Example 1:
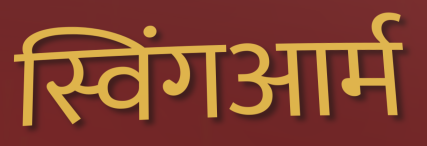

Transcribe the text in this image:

स्विंगआर्म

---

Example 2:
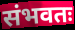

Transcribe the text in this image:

संभवतः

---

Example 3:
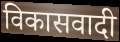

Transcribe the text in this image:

विकासवादी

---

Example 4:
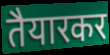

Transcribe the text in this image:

तैयारकर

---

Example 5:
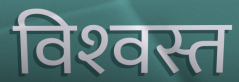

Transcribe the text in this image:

विश्‍वस्त